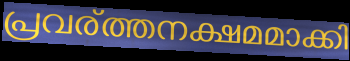
പ്രവര്ത്തനക്ഷമമാക്കി